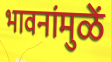
भावनांमुळें